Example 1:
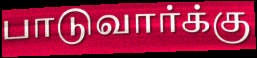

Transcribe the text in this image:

பாடுவார்க்கு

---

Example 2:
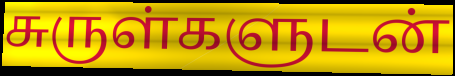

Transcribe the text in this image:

சுருள்களுடன்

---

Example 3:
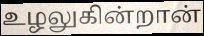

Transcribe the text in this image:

உழலுகின்றான்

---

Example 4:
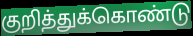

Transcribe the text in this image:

குறித்துக்கொண்டு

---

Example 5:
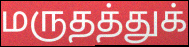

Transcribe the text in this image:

மருதத்துக்